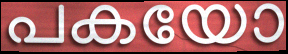
പകയോ